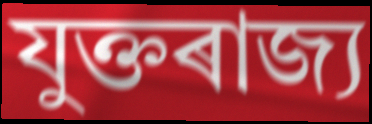
যুক্তৰাজ্য